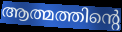
ആത്മത്തിന്റെ